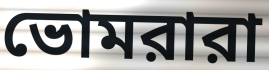
ভোমরারা